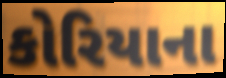
કોરિયાના